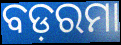
ବଡ଼ରମା